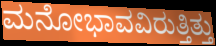
ಮನೋಭಾವವಿರುತ್ತಿತ್ತು